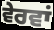
ਵੇਰਵਾਂ